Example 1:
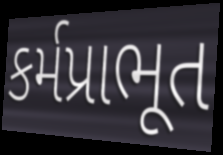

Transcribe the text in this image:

કર્મપ્રાભૂત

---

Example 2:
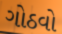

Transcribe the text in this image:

ગોઠવો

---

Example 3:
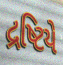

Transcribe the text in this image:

દ્રષ્ટિયે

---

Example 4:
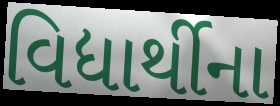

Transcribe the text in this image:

વિદ્યાર્થીના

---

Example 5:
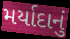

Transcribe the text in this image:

મર્યાદાનું